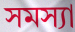
সমস্যা